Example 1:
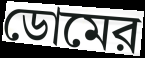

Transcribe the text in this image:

ডোমের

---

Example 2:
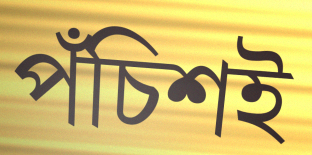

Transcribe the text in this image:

পঁচিশই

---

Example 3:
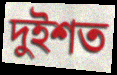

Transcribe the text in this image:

দুইশত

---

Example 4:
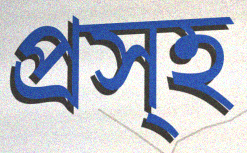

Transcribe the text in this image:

প্রস্হ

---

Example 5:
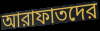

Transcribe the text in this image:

আরাফাতদের